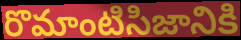
రొమాంటిసిజానికి